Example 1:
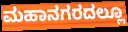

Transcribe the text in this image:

ಮಹಾನಗರದಲ್ಲೂ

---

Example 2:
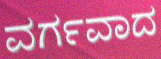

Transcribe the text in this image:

ವರ್ಗವಾದ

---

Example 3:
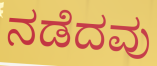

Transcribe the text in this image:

ನಡೆದವು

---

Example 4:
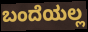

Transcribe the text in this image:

ಬಂದೆಯಲ್ಲ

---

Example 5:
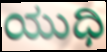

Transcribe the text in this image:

ಯುಧಿ